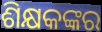
ଶିକ୍ଷକଙ୍କର